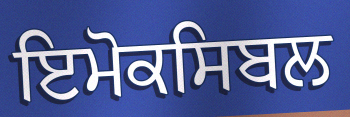
ਇਮੋਕਸਿਬਲ